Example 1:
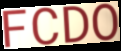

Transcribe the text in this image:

FCDO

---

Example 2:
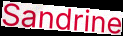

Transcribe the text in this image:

Sandrine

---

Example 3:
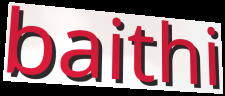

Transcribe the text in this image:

baithi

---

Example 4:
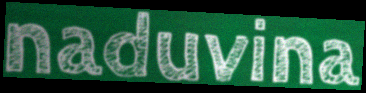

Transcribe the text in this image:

naduvina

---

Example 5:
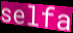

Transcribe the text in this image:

selfa